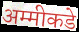
अम्मीकडे